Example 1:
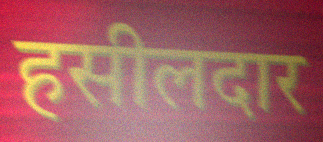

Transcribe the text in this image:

हसीलदार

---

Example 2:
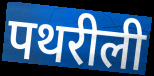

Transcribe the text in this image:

पथरीली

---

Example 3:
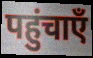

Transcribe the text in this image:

पहुंचाएँ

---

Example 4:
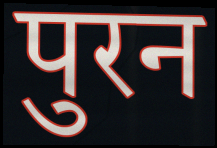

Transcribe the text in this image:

पुरन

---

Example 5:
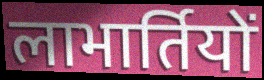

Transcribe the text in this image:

लाभार्तियों